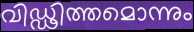
വിഡ്ഢിത്തമൊന്നും